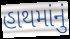
હાથમાંનું